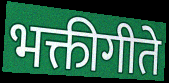
भक्तीगीते